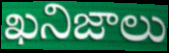
ఖనిజాలు